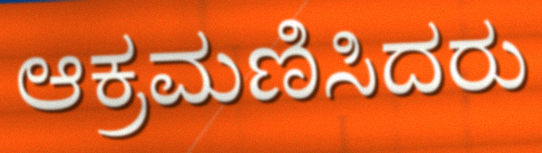
ಆಕ್ರಮಣಿಸಿದರು